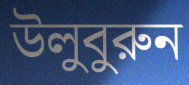
উলুবুরুন